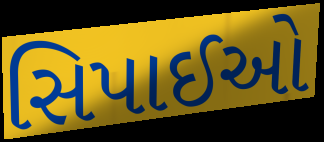
સિપાઈઓ